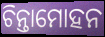
ଚିନ୍ତାମୋହନ